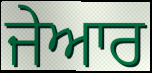
ਜੇਆਰ